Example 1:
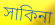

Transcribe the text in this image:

সাকিনা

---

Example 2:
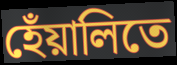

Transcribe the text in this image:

হেঁয়ালিতে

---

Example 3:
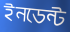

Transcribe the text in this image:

ইনডেন্ট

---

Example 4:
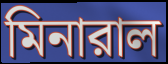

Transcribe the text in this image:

মিনারাল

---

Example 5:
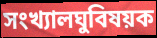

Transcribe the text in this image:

সংখ্যালঘুবিষয়ক